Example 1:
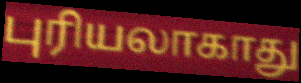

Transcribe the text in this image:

புரியலாகாது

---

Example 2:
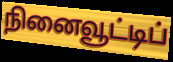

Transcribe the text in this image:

நினைவூட்டிப்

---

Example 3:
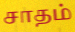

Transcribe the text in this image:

சாதம்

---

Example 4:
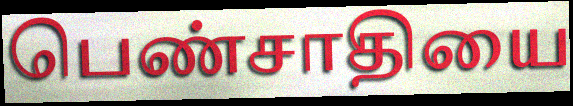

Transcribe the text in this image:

பெண்சாதியை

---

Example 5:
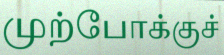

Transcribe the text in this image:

முற்போக்குச்